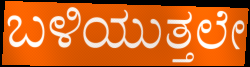
ಬಳಿಯುತ್ತಲೇ